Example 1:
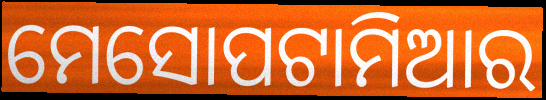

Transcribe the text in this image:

ମେସୋପଟାମିଆର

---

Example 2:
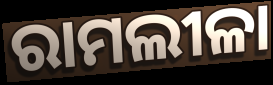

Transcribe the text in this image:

ରାମଲୀଳା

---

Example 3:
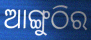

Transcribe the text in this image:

ଆଙ୍ଗୁଠିର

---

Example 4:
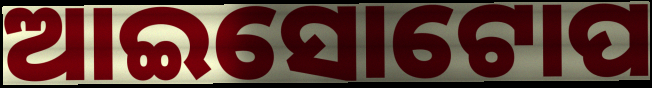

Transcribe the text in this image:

ଆଇସୋଟୋପ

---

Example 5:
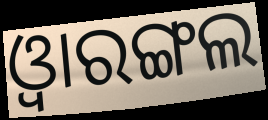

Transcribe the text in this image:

ଓ୍ବାରଙ୍ଗଲ